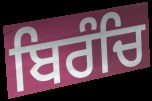
ਬਿਰੰਚਿ